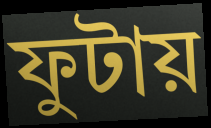
ফুটায়